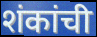
शंकांची